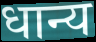
धान्य